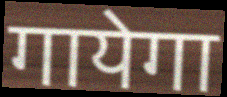
गायेगा